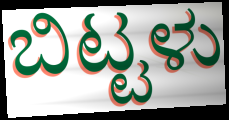
ಬಿಟ್ಟಳು